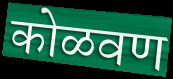
कोळवण